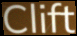
Clift